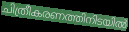
ചിത്രീകരണത്തിനിടയിൽ